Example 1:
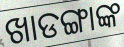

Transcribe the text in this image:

ଖାଡଙ୍ଗାଙ୍କ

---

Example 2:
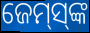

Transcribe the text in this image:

ଜେମ୍‌ସ୍‌ଙ୍କ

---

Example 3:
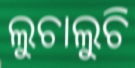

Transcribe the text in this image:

ଲୁଚାଲୁଚି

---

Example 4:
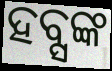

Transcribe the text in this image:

ହବ୍ସଙ୍କ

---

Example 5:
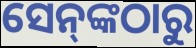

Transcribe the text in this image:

ସେନ୍‌ଙ୍କଠାରୁ